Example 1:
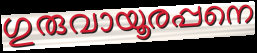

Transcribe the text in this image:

ഗുരുവായൂരപ്പനെ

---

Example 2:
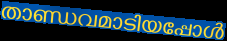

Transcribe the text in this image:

താണ്ഡവമാടിയപ്പോൾ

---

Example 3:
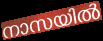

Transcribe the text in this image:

നാസയിൽ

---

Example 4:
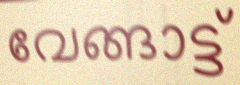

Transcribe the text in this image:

വേങ്ങാട്ട്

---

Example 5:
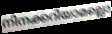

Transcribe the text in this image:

നിനക്കറിയാമല്ലൊ